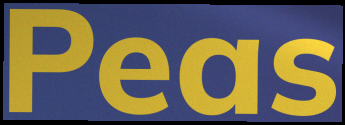
Peas